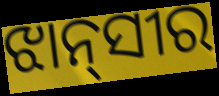
ଝାନ୍‌ସୀର